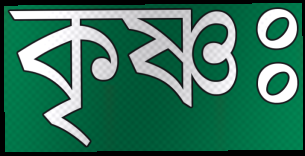
কৃষ্ণঃ